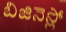
బిజినెస్లో